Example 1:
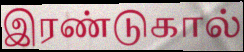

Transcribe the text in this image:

இரண்டுகால்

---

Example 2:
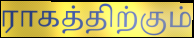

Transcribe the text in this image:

ராகத்திற்கும்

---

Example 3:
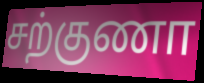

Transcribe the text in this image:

சற்குணா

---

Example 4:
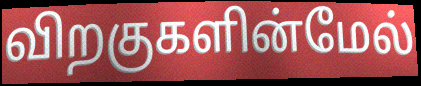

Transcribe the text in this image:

விறகுகளின்மேல்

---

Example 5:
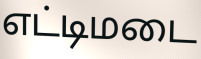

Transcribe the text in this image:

எட்டிமடை